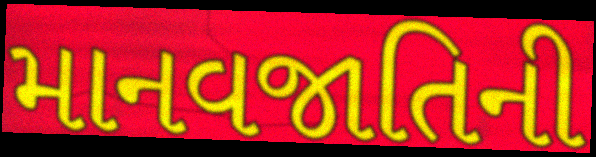
માનવજાતિની